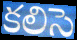
కలిసె